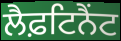
ਲੈਫ਼ਟਿਨੈਂਟ